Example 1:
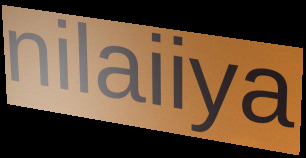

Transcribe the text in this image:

nilaiiya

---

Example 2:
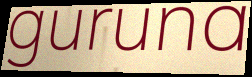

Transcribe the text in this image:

guruna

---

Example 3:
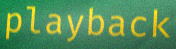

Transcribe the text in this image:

playback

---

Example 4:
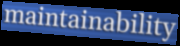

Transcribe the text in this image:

maintainability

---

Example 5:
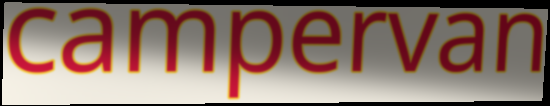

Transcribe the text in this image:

campervan